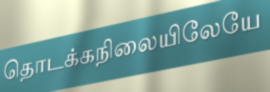
தொடக்கநிலையிலேயே